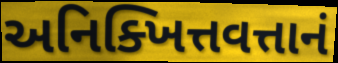
અનિક્ખિત્તવત્તાનં